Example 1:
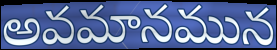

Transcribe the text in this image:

అవమానమున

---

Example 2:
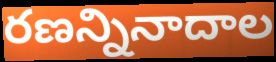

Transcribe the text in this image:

రణన్నినాదాల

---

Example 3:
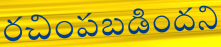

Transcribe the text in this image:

రచింపబడిందని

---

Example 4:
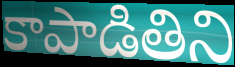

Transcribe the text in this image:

కాపాడితిని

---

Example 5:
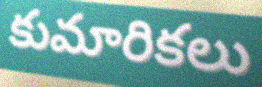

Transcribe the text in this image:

కుమారికలు